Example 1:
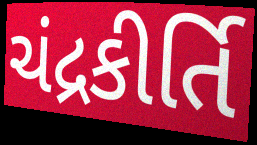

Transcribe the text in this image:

ચંદ્રકીર્તિ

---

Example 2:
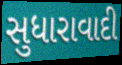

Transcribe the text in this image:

સુધારાવાદી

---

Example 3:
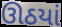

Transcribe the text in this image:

ઊઠયાં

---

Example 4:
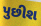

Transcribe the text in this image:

પુછીશ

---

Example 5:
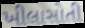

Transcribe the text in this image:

ખીલાસોતી